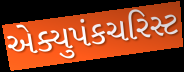
એક્યુપંકચરિસ્ટ